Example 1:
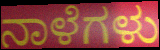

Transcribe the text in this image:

ನಾಳೆಗಳು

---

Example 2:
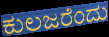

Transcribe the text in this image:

ಕುಲಜರೆಂದು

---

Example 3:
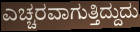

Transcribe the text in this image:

ಎಚ್ಚರವಾಗುತ್ತಿದ್ದುದು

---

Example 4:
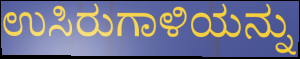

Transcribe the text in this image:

ಉಸಿರುಗಾಳಿಯನ್ನು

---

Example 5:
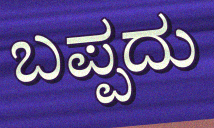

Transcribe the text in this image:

ಬಪ್ಪದು